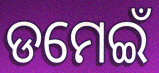
ଡମେଇଁ